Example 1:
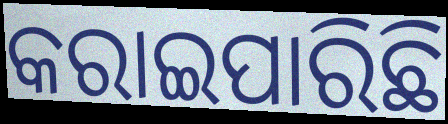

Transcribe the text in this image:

କରାଇପାରିଛି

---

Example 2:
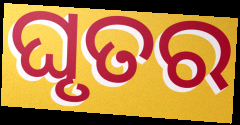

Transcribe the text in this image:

ଘୃତର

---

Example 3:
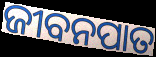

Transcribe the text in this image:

ଜୀବନପାତ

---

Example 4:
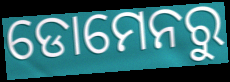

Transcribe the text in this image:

ଡୋମେନରୁ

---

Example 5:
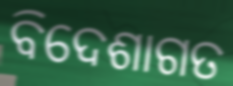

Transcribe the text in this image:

ବିଦେଶାଗତ